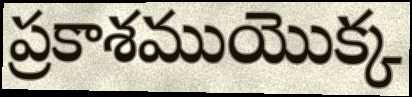
ప్రకాశముయొక్క